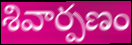
శివార్పణం